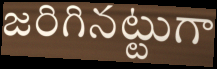
జరిగినట్టుగా